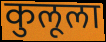
कुलूला